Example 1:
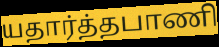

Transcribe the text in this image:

யதார்த்தபாணி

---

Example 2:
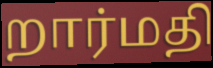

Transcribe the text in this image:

றார்மதி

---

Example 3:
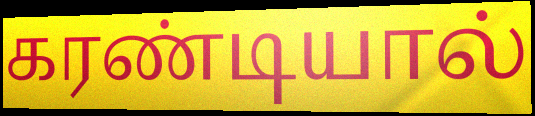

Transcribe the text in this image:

கரண்டியால்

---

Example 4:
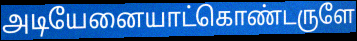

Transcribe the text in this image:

அடியேனையாட்கொண்டருளே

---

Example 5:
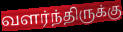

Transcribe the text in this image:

வளர்ந்திருக்கு